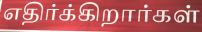
எதிர்க்கிறார்கள்